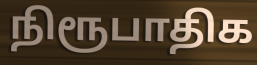
நிரூபாதிக